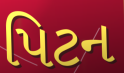
પિટન